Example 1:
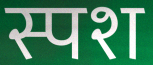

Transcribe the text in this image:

स्पश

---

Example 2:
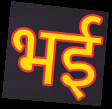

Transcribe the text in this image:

भई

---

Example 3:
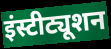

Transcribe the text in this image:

इंस्टीट्यूशन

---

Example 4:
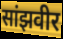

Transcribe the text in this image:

सांझवीर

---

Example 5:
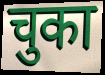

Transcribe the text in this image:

चुका